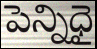
పెన్నిధై